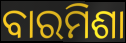
ବାରମିଶା